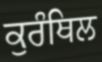
ਕੁਰੰਥਿਲ